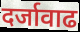
दर्जावाढ